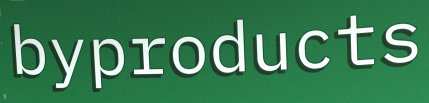
byproducts